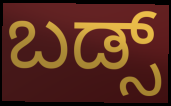
ಬಡ್ಸ್